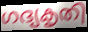
ഗദ്യകൃതി